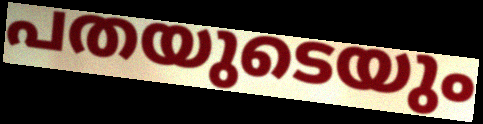
പതയുടെയും